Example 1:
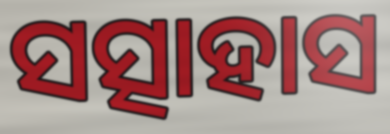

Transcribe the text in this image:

ସତ୍ସାହାସ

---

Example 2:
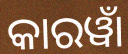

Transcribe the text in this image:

କାରୱାଁ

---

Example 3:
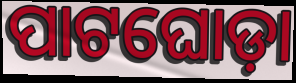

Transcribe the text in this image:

ପାଟଘୋଡ଼ା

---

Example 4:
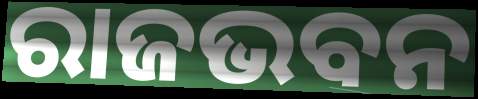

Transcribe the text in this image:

ରାଜଭବନ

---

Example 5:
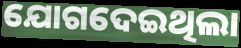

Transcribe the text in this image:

ଯୋଗଦେଇଥିଲା